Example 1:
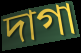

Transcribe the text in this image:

দাগা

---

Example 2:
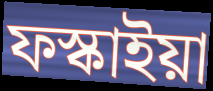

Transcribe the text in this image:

ফস্কাইয়া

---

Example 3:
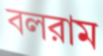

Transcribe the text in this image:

বলরাম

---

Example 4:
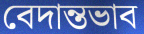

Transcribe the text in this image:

বেদান্তভাব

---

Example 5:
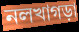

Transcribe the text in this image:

নলখাগড়া